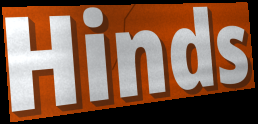
Hinds